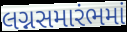
લગ્નસમારંભમાં